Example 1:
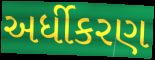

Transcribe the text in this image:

અર્ધીકરણ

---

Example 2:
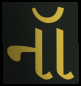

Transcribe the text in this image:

નૉ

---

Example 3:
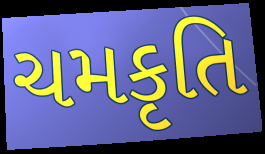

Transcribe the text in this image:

ચમકૃતિ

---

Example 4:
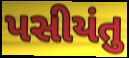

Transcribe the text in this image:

પસીયંતુ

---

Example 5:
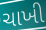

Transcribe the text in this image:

ચાખી